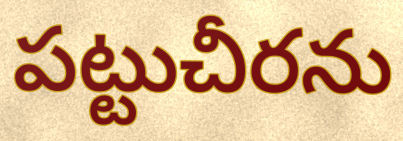
పట్టుచీరను